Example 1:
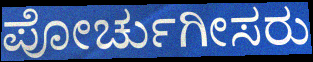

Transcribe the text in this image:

ಪೋರ್ಚುಗೀಸರು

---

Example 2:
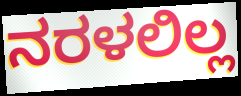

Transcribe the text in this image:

ನರಳಲಿಲ್ಲ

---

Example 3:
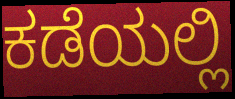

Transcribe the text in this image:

ಕಡೆಯಲ್ಲಿ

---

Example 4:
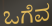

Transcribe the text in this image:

ಒಗೆವ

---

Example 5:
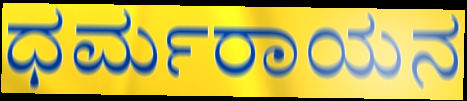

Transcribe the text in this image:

ಧರ್ಮರಾಯನ